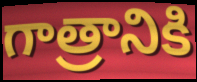
గాత్రానికి